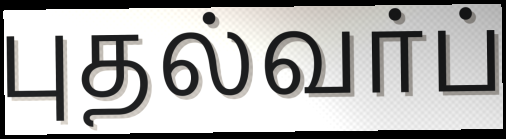
புதல்வர்ப்